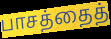
பாசத்தைத்